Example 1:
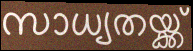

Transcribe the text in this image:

സാധ്യതയ്ക്ക്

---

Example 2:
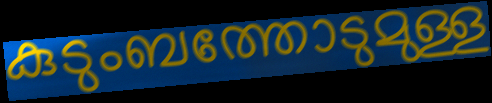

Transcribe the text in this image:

കുടുംബത്തോടുമുള്ള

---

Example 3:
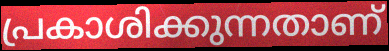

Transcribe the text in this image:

പ്രകാശിക്കുന്നതാണ്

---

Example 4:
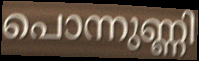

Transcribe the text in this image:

പൊന്നുണ്ണി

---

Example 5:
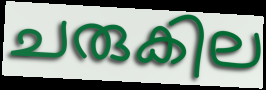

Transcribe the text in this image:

ചരുകില